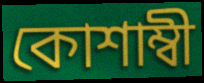
কোশাম্বী